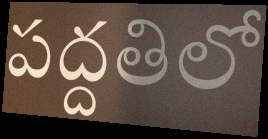
పద్దతిలో